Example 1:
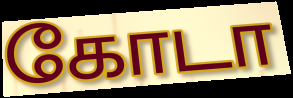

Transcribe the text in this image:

கோடா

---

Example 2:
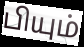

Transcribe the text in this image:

பியும்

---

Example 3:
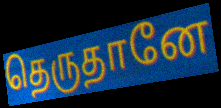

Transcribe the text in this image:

தெருதானே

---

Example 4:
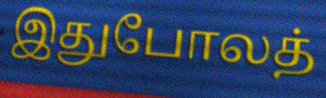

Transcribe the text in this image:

இதுபோலத்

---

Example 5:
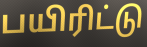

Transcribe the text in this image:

பயிரிட்டு